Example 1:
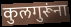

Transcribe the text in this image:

कुलगुरूंना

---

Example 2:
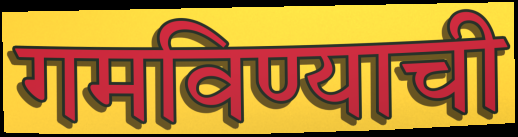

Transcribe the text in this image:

गमविण्याची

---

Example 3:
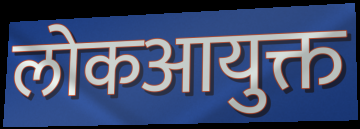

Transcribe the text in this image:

लोकआयुक्त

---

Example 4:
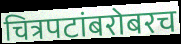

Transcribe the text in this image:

चित्रपटांबरोबरच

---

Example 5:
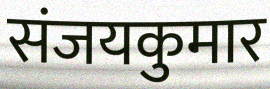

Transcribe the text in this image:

संजयकुमार